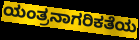
ಯಂತ್ರನಾಗರಿಕತೆಯ